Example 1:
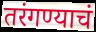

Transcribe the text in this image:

तरंगण्याचं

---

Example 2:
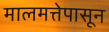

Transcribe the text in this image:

मालमत्तेपासून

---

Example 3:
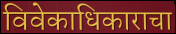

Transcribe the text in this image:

विवेकाधिकाराचा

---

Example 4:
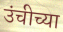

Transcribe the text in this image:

उंचीच्या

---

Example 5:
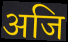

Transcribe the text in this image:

अजि